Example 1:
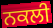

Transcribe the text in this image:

ਨਕਲੀ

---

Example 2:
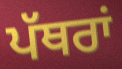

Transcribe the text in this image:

ਪੱਥਰਾਂ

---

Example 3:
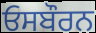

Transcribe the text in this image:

ਓਸਬੌਰਨ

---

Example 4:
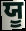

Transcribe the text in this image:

ਯੂ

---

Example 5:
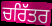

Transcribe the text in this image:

ਚਰਿੱਤਰ